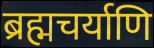
ब्रह्मचर्याणि